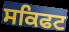
ਸਕਿਫਟ